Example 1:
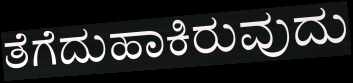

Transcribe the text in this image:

ತೆಗೆದುಹಾಕಿರುವುದು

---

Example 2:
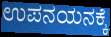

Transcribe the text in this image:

ಉಪನಯನಕ್ಕೆ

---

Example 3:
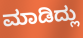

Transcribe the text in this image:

ಮಾಡಿದ್ಲು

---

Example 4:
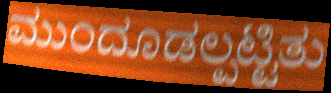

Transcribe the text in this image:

ಮುಂದೂಡಲ್ಪಟ್ಟಿತು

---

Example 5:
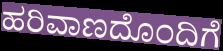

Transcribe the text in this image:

ಹರಿವಾಣದೊಂದಿಗೆ